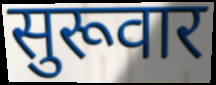
सुरूवार